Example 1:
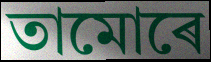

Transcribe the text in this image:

তামোৰে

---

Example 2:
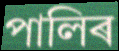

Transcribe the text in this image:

পালিৰ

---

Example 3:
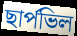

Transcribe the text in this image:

ছাৰ্পভিল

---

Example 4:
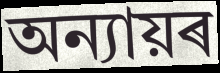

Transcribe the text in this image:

অন্যায়ৰ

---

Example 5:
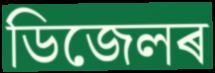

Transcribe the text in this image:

ডিজেলৰ